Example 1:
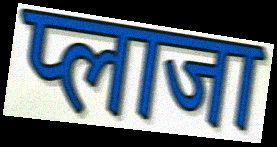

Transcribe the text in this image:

प्‍लाजा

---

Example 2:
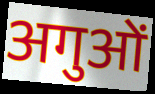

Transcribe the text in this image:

अगुओं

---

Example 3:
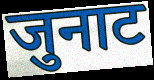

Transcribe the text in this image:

जुनाट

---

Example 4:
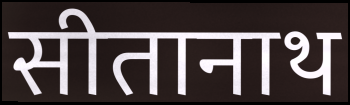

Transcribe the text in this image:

सीतानाथ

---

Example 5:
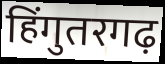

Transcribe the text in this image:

हिंगुतरगढ़